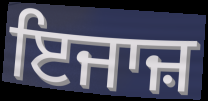
ਇਜਾਜ਼